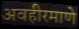
अवहीरमाणे